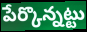
పేర్కొన్నట్టు